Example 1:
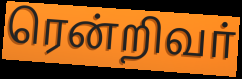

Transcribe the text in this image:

ரென்றிவர்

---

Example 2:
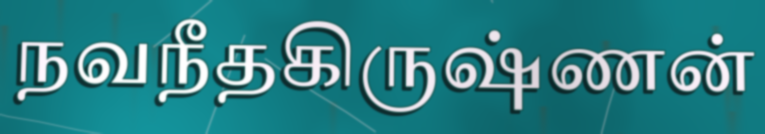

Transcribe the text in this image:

நவநீதகிருஷ்ணன்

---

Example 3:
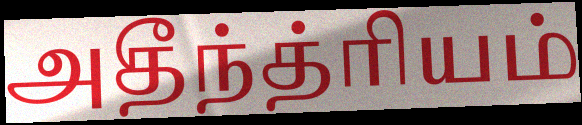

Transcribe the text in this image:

அதீந்த்ரியம்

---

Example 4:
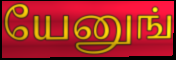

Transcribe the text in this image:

யேனுங்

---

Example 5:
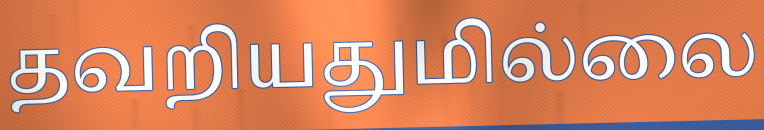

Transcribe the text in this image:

தவறியதுமில்லை